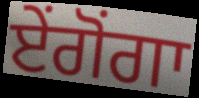
ਏਂਗੋਂਗਾ